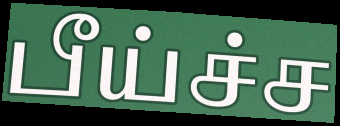
பீய்ச்ச